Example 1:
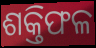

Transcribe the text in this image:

ଶକ୍ତିଫଳ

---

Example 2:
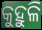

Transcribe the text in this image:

କୁହୁଳି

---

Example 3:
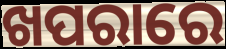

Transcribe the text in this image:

ଖପରାରେ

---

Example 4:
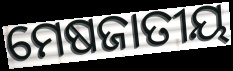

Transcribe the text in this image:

ମେଷଜାତୀୟ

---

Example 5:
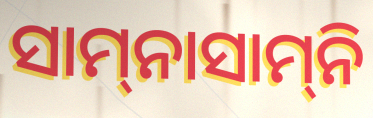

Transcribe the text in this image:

ସାମ୍‍ନାସାମ୍‍ନି